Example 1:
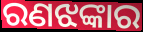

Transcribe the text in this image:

ରଣଝଙ୍କାର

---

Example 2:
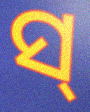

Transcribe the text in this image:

ସ୍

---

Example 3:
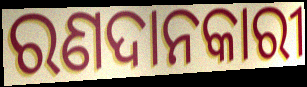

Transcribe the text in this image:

ରଣଦାନକାରୀ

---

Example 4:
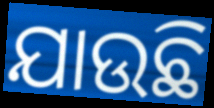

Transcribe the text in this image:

ଯାଉଛି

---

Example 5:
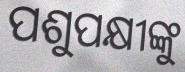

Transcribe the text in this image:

ପଶୁପକ୍ଷୀଙ୍କୁ